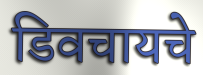
डिवचायचे